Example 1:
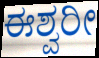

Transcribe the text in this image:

ಈಶ್ವರೀ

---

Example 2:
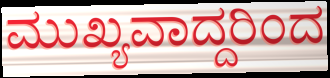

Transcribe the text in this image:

ಮುಖ್ಯವಾದ್ದರಿಂದ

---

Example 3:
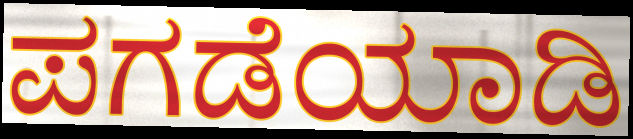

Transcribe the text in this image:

ಪಗಡೆಯಾಡಿ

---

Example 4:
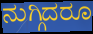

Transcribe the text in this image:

ನುಗ್ಗಿದರೂ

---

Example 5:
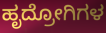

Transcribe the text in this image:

ಹೃದ್ರೋಗಿಗಳ